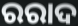
ରରାଦ